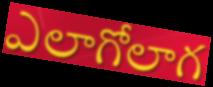
ఎలాగోలాగ